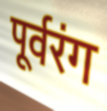
पूर्वरंग